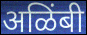
अळिंबी